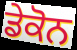
ਡੇਕੋਨ